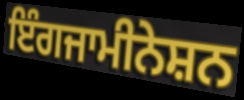
ਇੰਗਜਾਮੀਨੇਸ਼ਨ